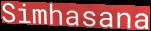
Simhasana